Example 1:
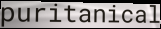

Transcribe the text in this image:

puritanical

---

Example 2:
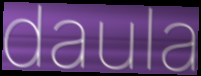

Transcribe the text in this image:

daula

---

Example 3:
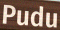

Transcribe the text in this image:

Pudu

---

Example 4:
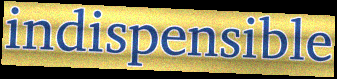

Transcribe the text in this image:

indispensible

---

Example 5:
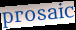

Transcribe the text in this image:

prosaic